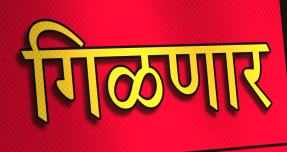
गिळणार